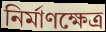
নির্মাণক্ষেত্র